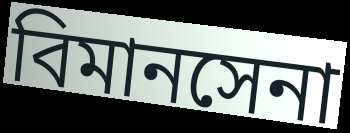
বিমানসেনা